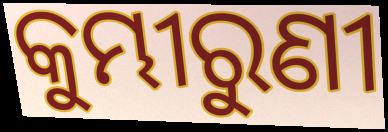
କୁମ୍ଭୀରୁଣୀ